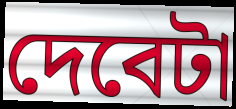
দেবেটা